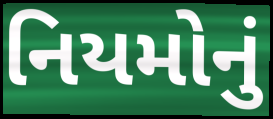
નિયમોનું